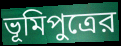
ভূমিপুত্রের